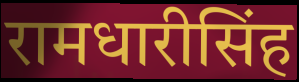
रामधारीसिंह